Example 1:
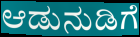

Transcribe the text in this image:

ಆಡುನುಡಿಗೆ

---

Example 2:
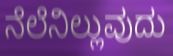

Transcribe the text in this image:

ನೆಲೆನಿಲ್ಲುವುದು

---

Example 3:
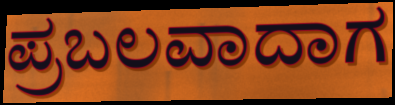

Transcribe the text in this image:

ಪ್ರಬಲವಾದಾಗ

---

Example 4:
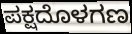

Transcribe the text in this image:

ಪಕ್ಷದೊಳಗಣ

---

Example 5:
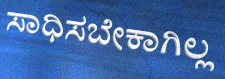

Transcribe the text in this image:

ಸಾಧಿಸಬೇಕಾಗಿಲ್ಲ